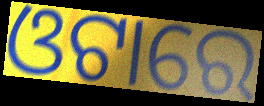
ଓଟାରେ